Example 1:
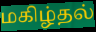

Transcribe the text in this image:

மகிழ்தல்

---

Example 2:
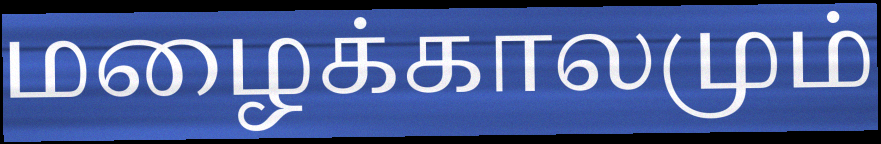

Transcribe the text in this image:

மழைக்காலமும்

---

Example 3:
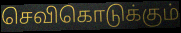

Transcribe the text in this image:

செவிகொடுக்கும்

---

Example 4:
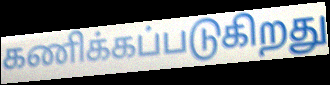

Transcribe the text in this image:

கணிக்கப்படுகிறது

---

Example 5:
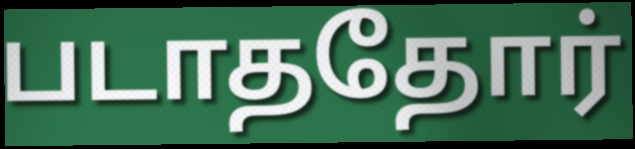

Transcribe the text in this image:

படாததோர்